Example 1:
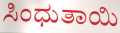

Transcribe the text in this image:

ಸಿಂಧುತಾಯಿ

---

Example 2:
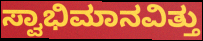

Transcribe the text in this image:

ಸ್ವಾಭಿಮಾನವಿತ್ತು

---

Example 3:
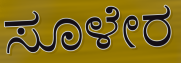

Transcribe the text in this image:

ಸೂಳೇರ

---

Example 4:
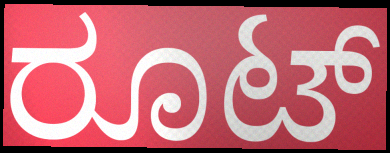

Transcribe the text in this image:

ರೂಟ್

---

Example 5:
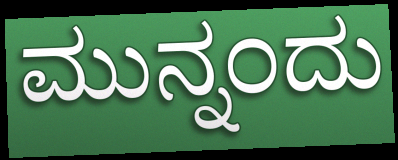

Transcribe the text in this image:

ಮುನ್ನಂದು